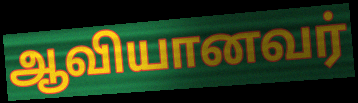
ஆவியானவர்